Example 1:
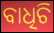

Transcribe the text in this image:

ବାଧିଚି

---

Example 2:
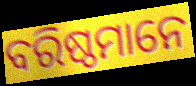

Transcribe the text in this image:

ବରିଷ୍ଠମାନେ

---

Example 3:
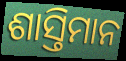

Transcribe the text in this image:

ଶାସ୍ତିମାନ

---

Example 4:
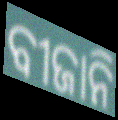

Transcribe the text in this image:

ବୀଜାନି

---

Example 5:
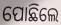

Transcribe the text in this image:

ପୋଛିଲେ